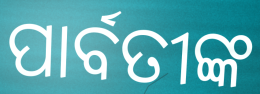
ପାର୍ବତୀଙ୍କ